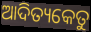
ଆଦିତ୍ୟକେତୁ